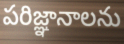
పరిజ్ఞానాలను